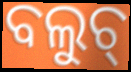
ବଲୁଚ୍